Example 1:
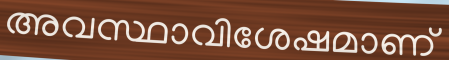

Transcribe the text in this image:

അവസ്ഥാവിശേഷമാണ്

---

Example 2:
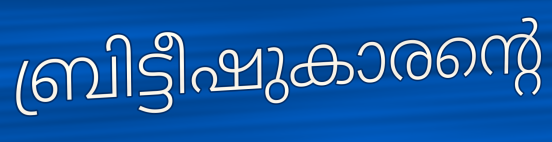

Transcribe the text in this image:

ബ്രിട്ടീഷുകാരന്റെ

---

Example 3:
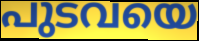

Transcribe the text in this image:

പുടവയെ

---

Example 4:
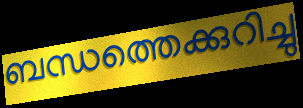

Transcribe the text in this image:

ബന്ധത്തെക്കുറിച്ചു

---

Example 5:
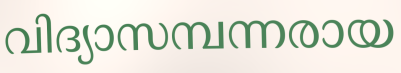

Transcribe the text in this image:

വിദ്യാസമ്പന്നരായ